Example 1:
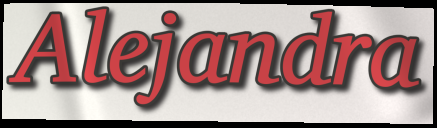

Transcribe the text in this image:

Alejandra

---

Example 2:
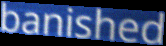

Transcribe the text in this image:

banished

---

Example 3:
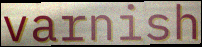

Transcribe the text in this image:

varnish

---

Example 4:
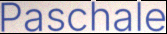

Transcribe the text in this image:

Paschale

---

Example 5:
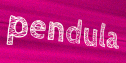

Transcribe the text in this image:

pendula